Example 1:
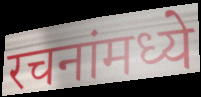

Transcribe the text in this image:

रचनांमध्ये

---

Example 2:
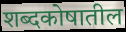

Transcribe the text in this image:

शब्दकोषातील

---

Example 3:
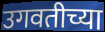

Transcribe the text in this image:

उगवतीच्या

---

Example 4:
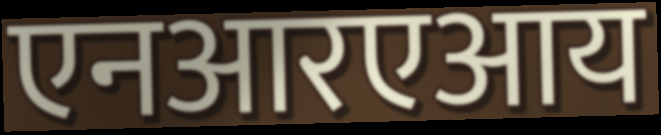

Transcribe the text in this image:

एनआरएआय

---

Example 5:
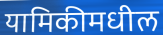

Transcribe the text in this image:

यामिकीमधील